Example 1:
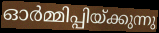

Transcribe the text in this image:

ഓർമ്മിപ്പിയ്ക്കുന്നു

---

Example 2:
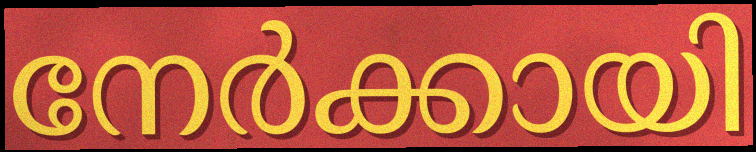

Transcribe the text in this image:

നേർക്കായി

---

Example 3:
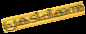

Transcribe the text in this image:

പ്രകടിപ്പിക്കുന്നു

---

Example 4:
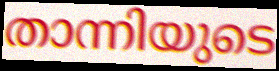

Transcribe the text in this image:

താന്നിയുടെ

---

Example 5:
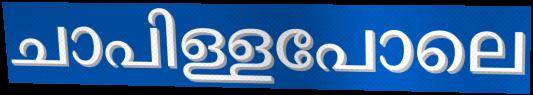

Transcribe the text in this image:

ചാപിള്ളപോലെ